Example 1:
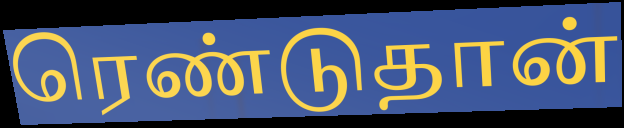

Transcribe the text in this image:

ரெண்டுதான்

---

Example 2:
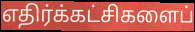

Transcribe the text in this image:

எதிர்க்கட்சிகளைப்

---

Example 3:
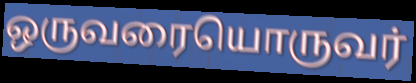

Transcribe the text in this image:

ஒருவரையொருவர்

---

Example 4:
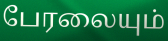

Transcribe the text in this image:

பேரலையும்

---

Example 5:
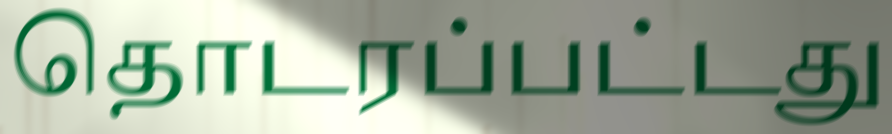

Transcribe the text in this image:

தொடரப்பட்டது